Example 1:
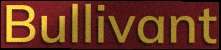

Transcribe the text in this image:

Bullivant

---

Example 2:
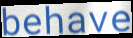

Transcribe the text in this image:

behave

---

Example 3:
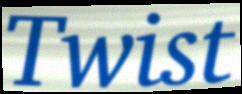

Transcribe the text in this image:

Twist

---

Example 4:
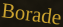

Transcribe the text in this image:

Borade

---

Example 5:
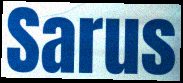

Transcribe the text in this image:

Sarus